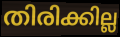
തിരിക്കില്ല